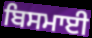
ਬਿਸਮਾਈ